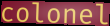
colonel